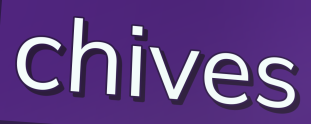
chives